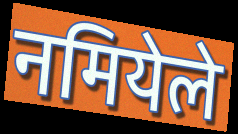
नमियेले